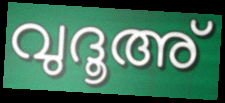
വുദൂഅ്